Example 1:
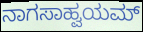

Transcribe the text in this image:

ನಾಗಸಾಹ್ವಯಮ್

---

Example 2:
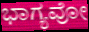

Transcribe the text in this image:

ಭಾಗ್ಯವೋ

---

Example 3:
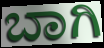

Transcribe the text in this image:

ಬಾಗಿ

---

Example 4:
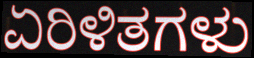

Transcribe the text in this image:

ಏರಿಳಿತಗಳು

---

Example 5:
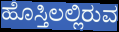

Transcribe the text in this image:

ಹೊಸ್ತಿಲಲ್ಲಿರುವ